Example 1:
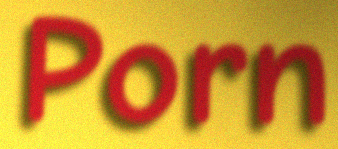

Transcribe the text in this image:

Porn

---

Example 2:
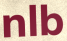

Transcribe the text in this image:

nlb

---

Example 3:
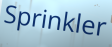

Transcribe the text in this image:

Sprinkler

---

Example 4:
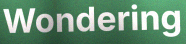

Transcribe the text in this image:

Wondering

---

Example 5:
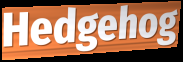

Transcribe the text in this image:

Hedgehog